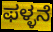
ಫಳ್ಳನೆ